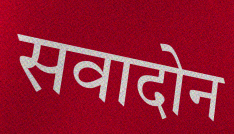
सवादोन